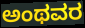
ಅಂಥವರ